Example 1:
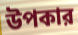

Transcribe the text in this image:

উপকার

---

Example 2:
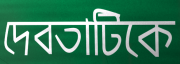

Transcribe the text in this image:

দেবতাটিকে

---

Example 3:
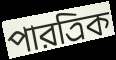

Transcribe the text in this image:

পারত্রিক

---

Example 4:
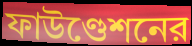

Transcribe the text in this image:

ফাউণ্ডেশনের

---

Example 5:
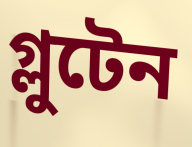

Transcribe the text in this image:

গ্লুটেন